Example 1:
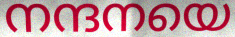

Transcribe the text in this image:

നന്ദനയെ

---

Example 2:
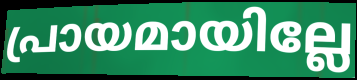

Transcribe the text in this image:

പ്രായമായില്ലേ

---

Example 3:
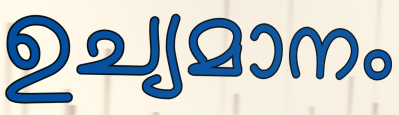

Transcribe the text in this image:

ഉച്യമാനം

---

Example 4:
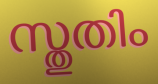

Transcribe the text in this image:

സ്തുതിം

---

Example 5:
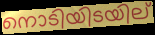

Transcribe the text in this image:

നൊടിയിടയില്